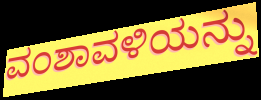
ವಂಶಾವಳಿಯನ್ನು